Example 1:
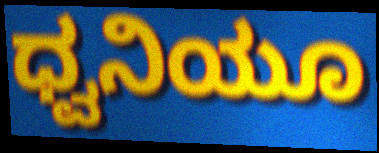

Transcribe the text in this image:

ಧ್ವನಿಯೂ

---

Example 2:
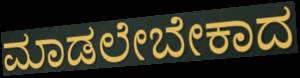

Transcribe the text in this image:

ಮಾಡಲೇಬೇಕಾದ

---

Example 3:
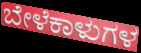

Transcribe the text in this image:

ಬೇಳೆಕಾಳುಗಳ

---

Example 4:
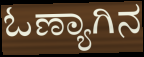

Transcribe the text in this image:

ಓಣ್ಯಾಗಿನ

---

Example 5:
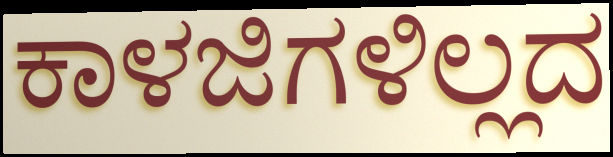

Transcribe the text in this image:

ಕಾಳಜಿಗಳಿಲ್ಲದ